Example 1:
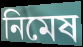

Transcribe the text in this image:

নিমেষ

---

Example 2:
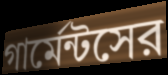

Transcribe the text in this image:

গার্মেন্টসের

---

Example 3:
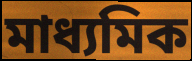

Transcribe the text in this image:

মাধ্যমিক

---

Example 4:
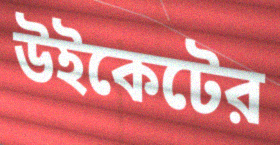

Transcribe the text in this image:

উইকেটের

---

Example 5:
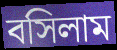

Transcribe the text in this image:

বসিলাম